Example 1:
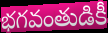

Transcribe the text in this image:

భగవంతుడికీ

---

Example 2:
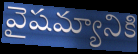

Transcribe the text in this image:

వైషమ్యానికి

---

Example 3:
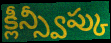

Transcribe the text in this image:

క్లీన్స్వీప్కు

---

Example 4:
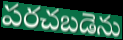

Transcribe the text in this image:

పరచబడెను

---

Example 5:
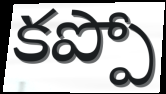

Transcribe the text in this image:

కప్పో